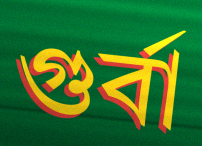
গুর্বা